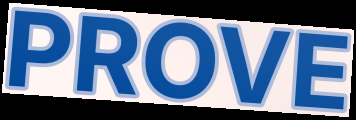
PROVE